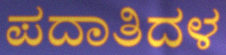
ಪದಾತಿದಳ